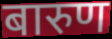
बारुण